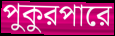
পুকুরপারে